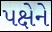
પક્ષેને